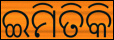
ଇମିତିକି